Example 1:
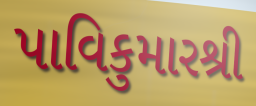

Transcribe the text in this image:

પાવિકુમારશ્રી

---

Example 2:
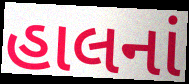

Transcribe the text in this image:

હાલનાં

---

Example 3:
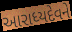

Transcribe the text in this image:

આરાધ્યદેવને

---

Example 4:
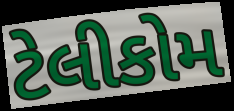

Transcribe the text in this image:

ટેલીકોમ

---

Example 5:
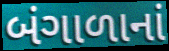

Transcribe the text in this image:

બંગાળાનાં